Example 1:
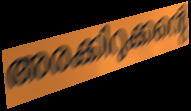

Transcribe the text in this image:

അരക്കിറുക്കന്റെ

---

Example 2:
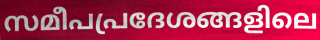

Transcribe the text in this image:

സമീപപ്രദേശങ്ങളിലെ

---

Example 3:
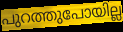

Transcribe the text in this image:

പുറത്തുപോയില്ല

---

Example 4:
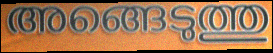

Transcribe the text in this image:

അങ്ങെടുത്തു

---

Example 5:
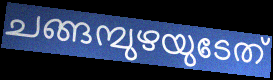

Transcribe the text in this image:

ചങ്ങമ്പുഴയുടേത്